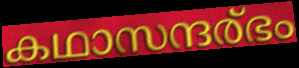
കഥാസന്ദര്ഭം